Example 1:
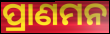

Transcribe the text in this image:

ପ୍ରାଣମନ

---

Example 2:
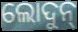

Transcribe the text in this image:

ଲୋଦୁନ୍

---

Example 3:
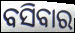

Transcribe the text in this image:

ବସିବାର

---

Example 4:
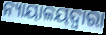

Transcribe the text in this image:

ନ୍ୟାୟାଳୟଦ୍ୱାରା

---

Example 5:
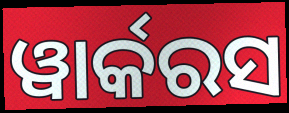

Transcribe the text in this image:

ୱାର୍କରସ